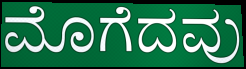
ಮೊಗೆದವು